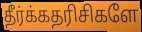
தீர்க்கதரிசிகளே